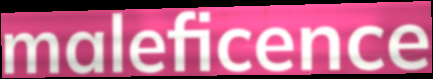
maleficence